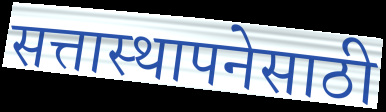
सत्तास्थापनेसाठी